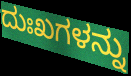
ದುಃಖಗಳನ್ನು